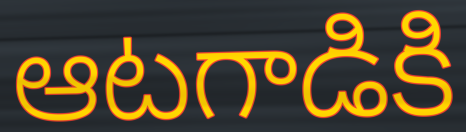
ఆటగాడికి